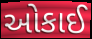
ઓકાઈ